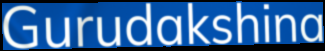
Gurudakshina